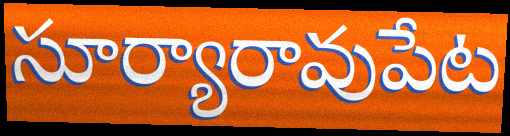
సూర్యారావుపేట